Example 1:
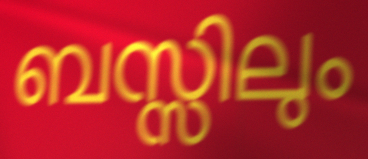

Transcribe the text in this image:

ബസ്സിലും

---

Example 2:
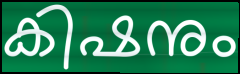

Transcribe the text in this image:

കിഷനും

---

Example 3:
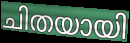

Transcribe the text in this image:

ചിതയായി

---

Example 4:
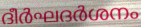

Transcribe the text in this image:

ദീർഘദർശനം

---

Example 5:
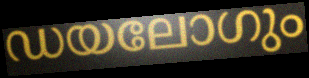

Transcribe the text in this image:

ഡയലോഗും